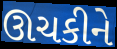
ઊચકીને